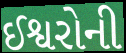
ઈશ્વરોની